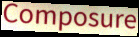
Composure